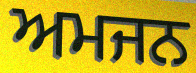
ਅਮਜਨ